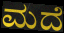
ಮದೆ